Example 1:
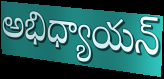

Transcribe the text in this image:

అభిధ్యాయన్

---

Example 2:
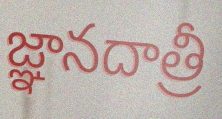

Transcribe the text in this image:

జ్ఞానదాత్రీ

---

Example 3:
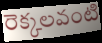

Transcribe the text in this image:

రెక్కలవంటి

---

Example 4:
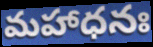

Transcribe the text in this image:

మహాధనః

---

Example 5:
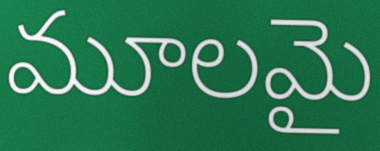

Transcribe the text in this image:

మూలమై